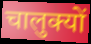
चालुक्यों